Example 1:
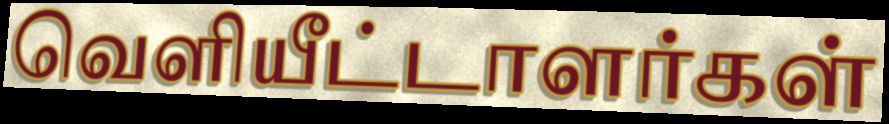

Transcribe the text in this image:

வெளியீட்டாளர்கள்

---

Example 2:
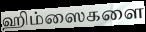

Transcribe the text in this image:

ஹிம்ஸைகளை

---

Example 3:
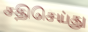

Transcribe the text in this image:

சதிசெய்து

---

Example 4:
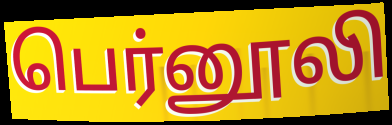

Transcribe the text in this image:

பெர்னூலி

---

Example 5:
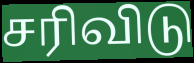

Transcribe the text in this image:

சரிவிடு